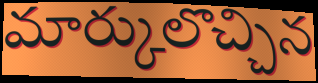
మార్కులొచ్చిన